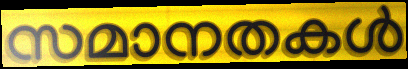
സമാനതകൾ